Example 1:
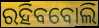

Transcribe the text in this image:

ରହିବବୋଲି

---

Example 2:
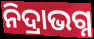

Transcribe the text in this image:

ନିଦ୍ରାଭଗ୍ନ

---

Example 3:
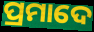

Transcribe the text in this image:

ପ୍ରମାଦେ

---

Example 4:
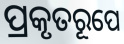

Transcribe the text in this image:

ପ୍ରକୃତରୂପେ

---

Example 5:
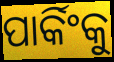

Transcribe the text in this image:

ପାର୍କିଂକୁ